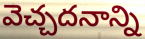
వెచ్చదనాన్ని